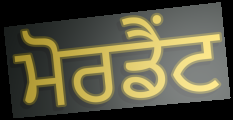
ਮੋਰਡੈਂਟ